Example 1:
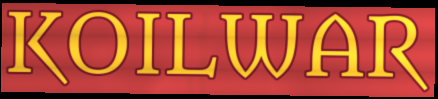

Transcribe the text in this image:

KOILWAR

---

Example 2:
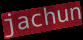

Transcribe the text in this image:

jachun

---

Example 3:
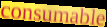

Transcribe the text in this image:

consumable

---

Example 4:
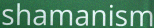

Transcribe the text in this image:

shamanism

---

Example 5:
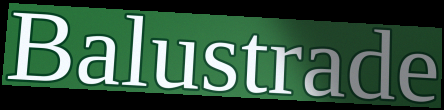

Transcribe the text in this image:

Balustrade